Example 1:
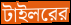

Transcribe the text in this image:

টাইলরের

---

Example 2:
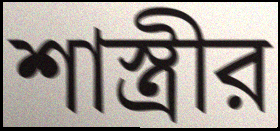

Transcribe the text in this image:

শাস্ত্রীর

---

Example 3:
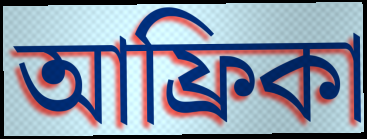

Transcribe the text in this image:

আফ্রিকা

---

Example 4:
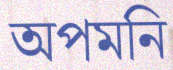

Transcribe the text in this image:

অপমনি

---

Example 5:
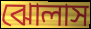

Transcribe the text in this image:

ঝোলাস